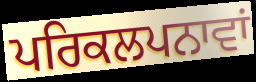
ਪਰਿਕਲਪਨਾਵਾਂ